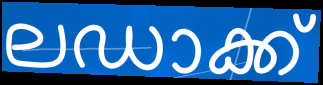
ലഡാക്ക്